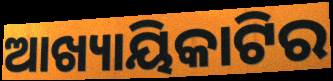
ଆଖ୍ୟାୟିକାଟିର